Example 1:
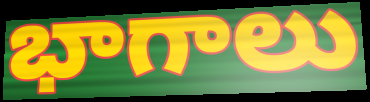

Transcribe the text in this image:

భాగాలు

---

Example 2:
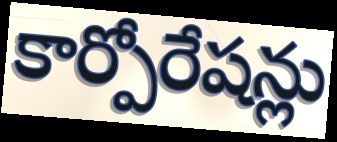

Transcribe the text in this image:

కార్పోరేషన్లు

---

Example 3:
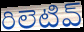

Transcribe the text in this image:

రిలెటివ్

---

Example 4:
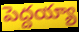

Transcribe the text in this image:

పెద్దయ్యా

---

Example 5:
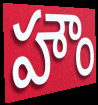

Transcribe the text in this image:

హౌం